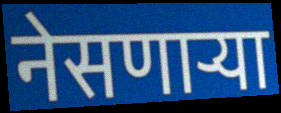
नेसणाऱ्या